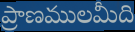
ప్రాణములమీది